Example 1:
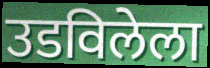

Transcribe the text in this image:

उडविलेला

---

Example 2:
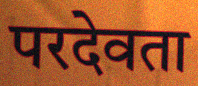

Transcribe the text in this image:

परदेवता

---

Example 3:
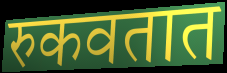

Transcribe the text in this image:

रुकवतात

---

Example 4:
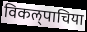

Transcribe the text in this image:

विकल्पाचिया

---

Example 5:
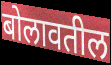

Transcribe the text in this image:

बोलावतील